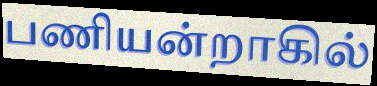
பணியன்றாகில்